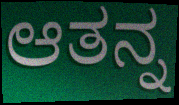
ಆತನ್ನ